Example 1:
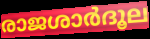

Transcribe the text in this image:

രാജശാർദൂല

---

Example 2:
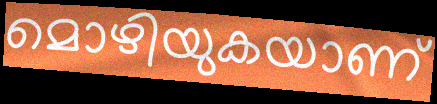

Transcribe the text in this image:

മൊഴിയുകയാണ്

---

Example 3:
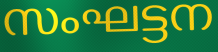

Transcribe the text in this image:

സംഘട്ടന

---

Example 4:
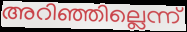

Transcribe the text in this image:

അറിഞ്ഞില്ലെന്ന്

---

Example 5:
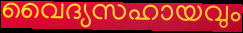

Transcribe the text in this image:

വൈദ്യസഹായവും